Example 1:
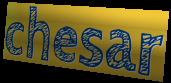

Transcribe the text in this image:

chesar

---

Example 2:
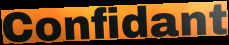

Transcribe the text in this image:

Confidant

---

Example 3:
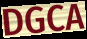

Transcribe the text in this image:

DGCA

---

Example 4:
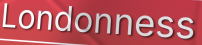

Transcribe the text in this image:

Londonness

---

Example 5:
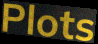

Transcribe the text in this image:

Plots